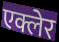
एक्लेर